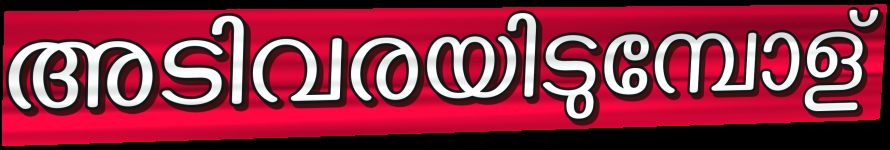
അടിവരയിടുമ്പോള്